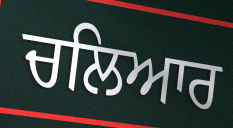
ਚਲਿਆਰ